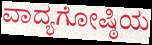
ವಾದ್ಯಗೋಷ್ಠಿಯ